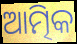
ଆତ୍ମିକ